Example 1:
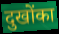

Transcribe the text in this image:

दुखोंका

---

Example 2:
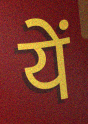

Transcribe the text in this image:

यें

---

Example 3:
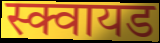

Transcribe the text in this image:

स्क्वायड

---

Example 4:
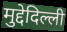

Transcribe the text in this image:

मुद्देदिल्ली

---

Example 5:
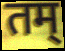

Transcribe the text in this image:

तम्